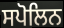
ਸਪੋਲਿਨ